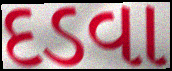
દડવા